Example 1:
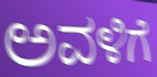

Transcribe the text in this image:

ಅವಳಿಗೆ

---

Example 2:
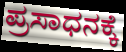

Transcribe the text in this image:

ಪ್ರಸಾಧನಕ್ಕೆ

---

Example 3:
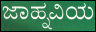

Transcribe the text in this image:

ಜಾಹ್ನವಿಯ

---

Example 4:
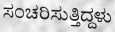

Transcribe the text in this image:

ಸಂಚರಿಸುತ್ತಿದ್ದಳು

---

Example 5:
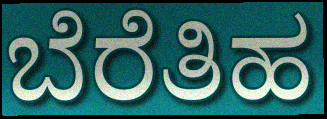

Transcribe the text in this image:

ಬೆರೆತಿಹ